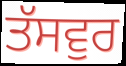
ਤੱਸਵੁਰ